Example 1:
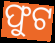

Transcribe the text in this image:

ଫୁଟ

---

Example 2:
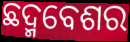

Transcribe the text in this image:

ଛଦ୍ମବେଶର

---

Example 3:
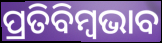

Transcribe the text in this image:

ପ୍ରତିବିମ୍ବଭାବ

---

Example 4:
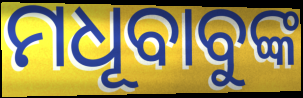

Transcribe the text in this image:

ମଧୂବାବୁଙ୍କ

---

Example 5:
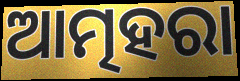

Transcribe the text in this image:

ଆତ୍ମହରା